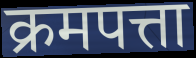
क्रमपत्ता